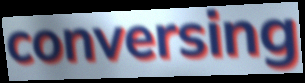
conversing